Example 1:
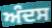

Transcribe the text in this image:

ਅੰਦਸ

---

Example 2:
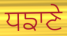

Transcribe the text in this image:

ਧਙਾਣੇ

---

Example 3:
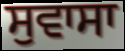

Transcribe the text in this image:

ਸੁਵਾਸਾ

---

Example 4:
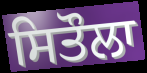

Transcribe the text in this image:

ਸਿਤੌਲਾ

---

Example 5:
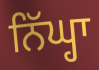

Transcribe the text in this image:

ਨਿੱਘ੍ਹਾ